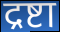
द्रष्टा